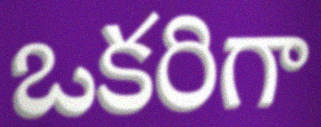
ఒకరిగా